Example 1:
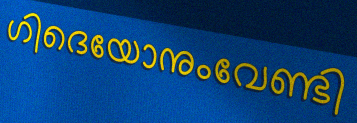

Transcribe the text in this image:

ഗിദെയോനുംവേണ്ടി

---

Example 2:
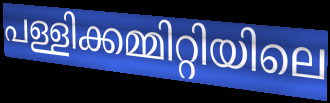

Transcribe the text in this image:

പള്ളിക്കമ്മിറ്റിയിലെ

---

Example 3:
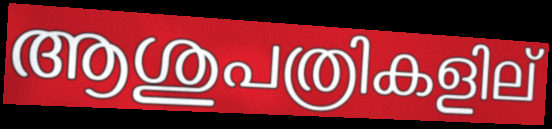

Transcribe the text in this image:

ആശുപത്രികളില്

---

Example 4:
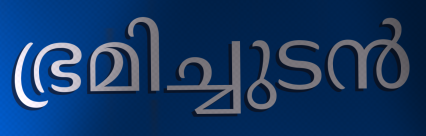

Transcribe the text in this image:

ഭ്രമിച്ചുടൻ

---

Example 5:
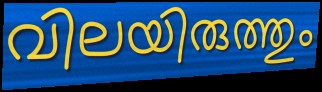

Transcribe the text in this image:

വിലയിരുത്തും